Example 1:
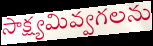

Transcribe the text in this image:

సాక్ష్యమివ్వగలను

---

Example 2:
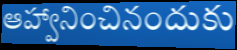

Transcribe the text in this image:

ఆహ్వానించినందుకు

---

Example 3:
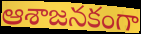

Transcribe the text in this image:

ఆశాజనకంగా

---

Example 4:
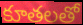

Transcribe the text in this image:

కూతలతో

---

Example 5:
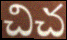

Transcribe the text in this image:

చిచ